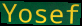
Yosef